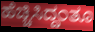
ಹೆಚ್ಚಿಸಿದ್ದಂತೂ